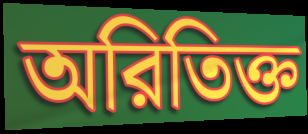
অরিতিক্ত